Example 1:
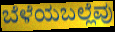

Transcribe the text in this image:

ಬೆಳೆಯಬಲ್ಲೆವು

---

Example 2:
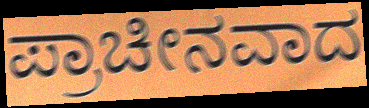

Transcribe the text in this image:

ಪ್ರಾಚೀನವಾದ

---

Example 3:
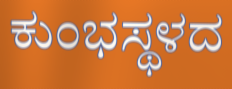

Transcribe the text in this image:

ಕುಂಭಸ್ಥಳದ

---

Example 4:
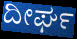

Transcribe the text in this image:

ದೀರ್ಘ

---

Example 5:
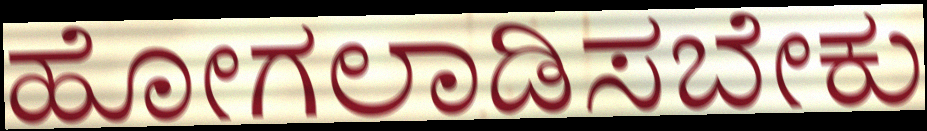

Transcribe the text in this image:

ಹೋಗಲಾಡಿಸಬೇಕು